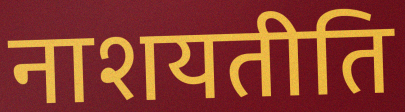
नाशयतीति